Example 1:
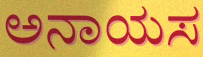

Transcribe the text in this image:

ಅನಾಯಸ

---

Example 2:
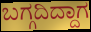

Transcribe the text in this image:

ಬಗ್ಗದಿದ್ದಾಗ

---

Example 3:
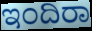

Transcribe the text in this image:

ಇಂದಿರಾ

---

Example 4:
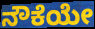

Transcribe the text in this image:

ನೌಕೆಯೇ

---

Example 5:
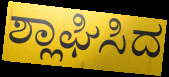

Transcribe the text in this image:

ಶ್ಲಾಘಿಸಿದ